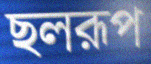
ছলরূপ